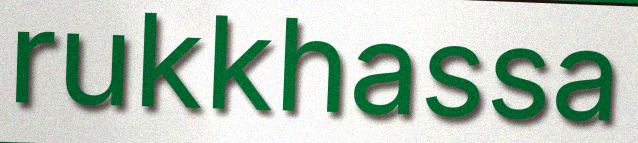
rukkhassa